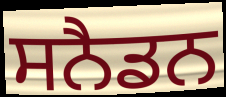
ਸਨੈਡਨ